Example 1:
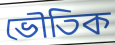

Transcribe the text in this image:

ভৌতিক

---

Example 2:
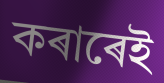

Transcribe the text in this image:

কৰাৰেই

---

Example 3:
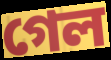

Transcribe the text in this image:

গেল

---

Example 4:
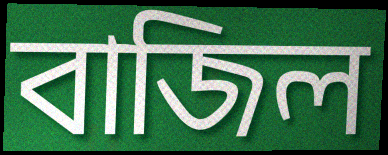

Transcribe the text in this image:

বাজিল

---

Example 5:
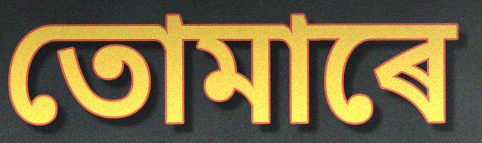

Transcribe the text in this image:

তোমাৰে